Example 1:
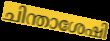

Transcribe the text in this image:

ചിന്താശേഷി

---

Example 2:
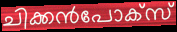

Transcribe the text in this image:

ചിക്കൻപോക്സ്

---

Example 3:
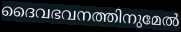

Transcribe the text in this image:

ദൈവഭവനത്തിനുമേൽ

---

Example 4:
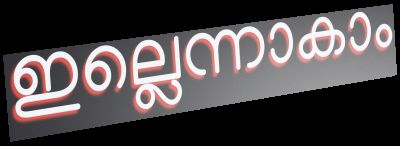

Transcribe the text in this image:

ഇല്ലെന്നാകാം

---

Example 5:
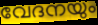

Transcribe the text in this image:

വേദനയും